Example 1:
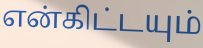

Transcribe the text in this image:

என்கிட்டயும்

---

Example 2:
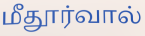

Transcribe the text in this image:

மீதூர்வால்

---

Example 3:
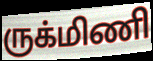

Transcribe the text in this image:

ருக்மிணி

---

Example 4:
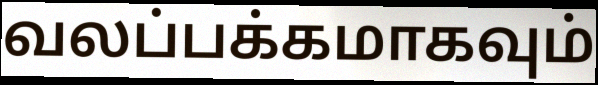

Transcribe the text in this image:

வலப்பக்கமாகவும்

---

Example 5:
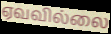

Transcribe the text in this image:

ஏவவில்லை